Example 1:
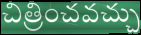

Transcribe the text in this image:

చిత్రించవచ్చు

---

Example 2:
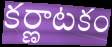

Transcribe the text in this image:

కర్ణాటకం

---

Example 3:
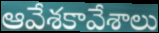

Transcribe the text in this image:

ఆవేశకావేశాలు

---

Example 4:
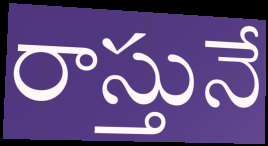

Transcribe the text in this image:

రాస్తునే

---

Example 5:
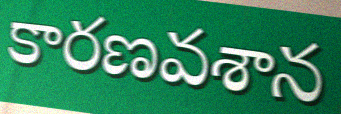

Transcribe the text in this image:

కారణవశాన